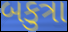
બકુત્રા